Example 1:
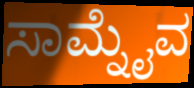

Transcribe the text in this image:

ಸಾಮ್ನೈವ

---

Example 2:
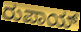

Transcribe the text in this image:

ರುಪಾಯ್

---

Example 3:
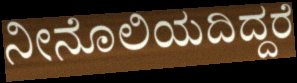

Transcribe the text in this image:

ನೀನೊಲಿಯದಿದ್ದರೆ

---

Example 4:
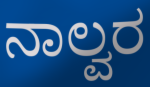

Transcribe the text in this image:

ನಾಲ್ವರ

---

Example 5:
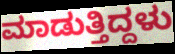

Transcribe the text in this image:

ಮಾಡುತ್ತಿದ್ದಳು